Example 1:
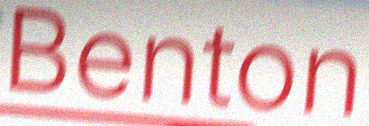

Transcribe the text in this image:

Benton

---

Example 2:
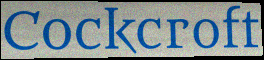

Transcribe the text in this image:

Cockcroft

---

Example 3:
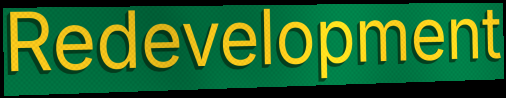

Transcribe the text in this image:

Redevelopment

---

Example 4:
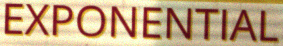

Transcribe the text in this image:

EXPONENTIAL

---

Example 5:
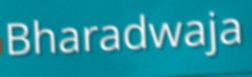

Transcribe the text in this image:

Bharadwaja